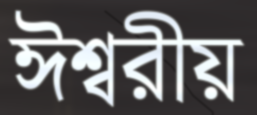
ঈশ্বরীয়